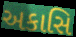
અકાસિ